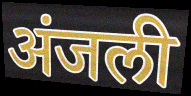
अंजली